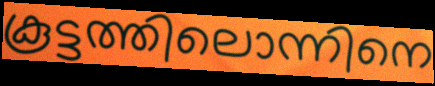
കൂട്ടത്തിലൊന്നിനെ